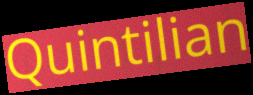
Quintilian